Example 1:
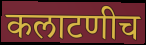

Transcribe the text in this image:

कलाटणीच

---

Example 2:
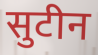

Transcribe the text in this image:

सुटीन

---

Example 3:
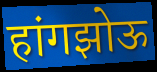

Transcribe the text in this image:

हांगझोऊ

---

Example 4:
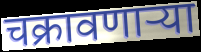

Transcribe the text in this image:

चक्रावणाऱ्या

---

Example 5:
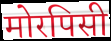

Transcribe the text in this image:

मोरपिसी